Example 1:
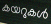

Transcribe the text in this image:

കയറുകൾ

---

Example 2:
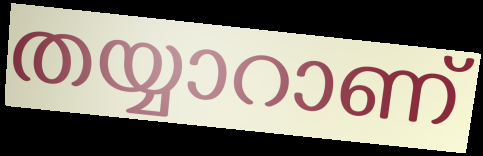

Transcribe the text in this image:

തയ്യാറാണ്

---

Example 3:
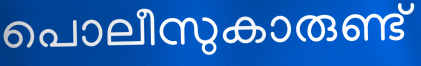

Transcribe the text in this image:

പൊലീസുകാരുണ്ട്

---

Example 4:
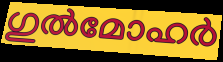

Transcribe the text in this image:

ഗുൽമോഹർ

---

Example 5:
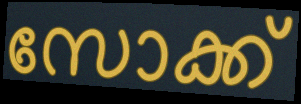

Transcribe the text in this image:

സോക്ക്